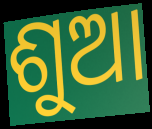
ଶୁଆ